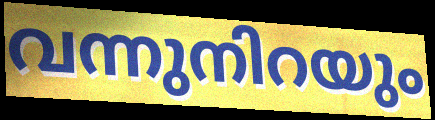
വന്നുനിറയും